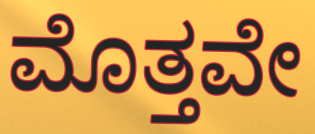
ಮೊತ್ತವೇ